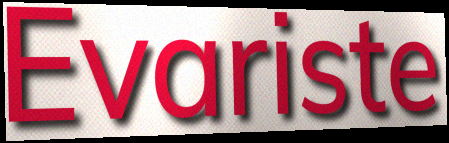
Evariste